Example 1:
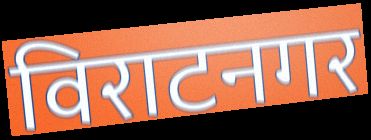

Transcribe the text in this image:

विराटनगर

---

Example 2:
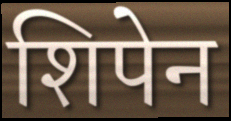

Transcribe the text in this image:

शिपेन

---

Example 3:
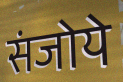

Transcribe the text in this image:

संजोये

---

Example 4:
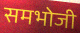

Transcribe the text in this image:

समभोजी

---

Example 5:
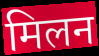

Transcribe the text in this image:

मिलन